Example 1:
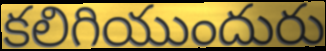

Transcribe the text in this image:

కలిగియుందురు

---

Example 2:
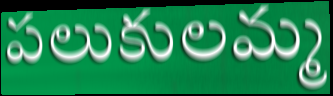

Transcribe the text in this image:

పలుకులమ్మ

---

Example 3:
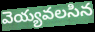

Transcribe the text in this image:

వెయ్యవలసిన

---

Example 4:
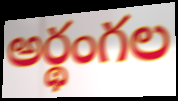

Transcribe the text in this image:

అర్థంగల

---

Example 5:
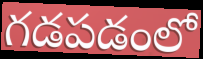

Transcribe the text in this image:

గడపడంలో